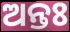
ଅନ୍ତଃ